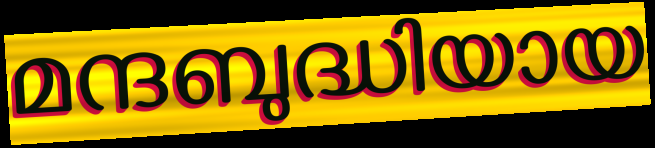
മന്ദബുദ്ധിയായ